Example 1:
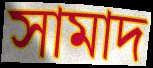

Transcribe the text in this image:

সামাদ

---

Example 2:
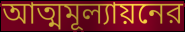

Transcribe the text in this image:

আত্মমূল্যায়নের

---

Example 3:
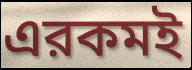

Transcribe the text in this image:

এরকমই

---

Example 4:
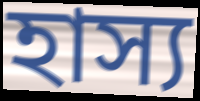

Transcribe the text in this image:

হাস্য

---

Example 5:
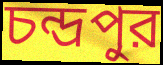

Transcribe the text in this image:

চন্দ্রপুর